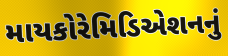
માયકોરેમિડિએશનનું